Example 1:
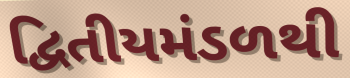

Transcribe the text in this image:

દ્વિતીયમંડળથી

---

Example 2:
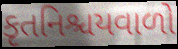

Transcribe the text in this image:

કૃતનિશ્ચયવાળો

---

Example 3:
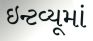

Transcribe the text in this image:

ઇન્ટવ્યૂમાં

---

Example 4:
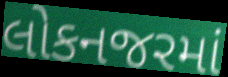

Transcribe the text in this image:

લોકનજરમાં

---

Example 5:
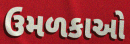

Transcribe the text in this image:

ઉમળકાઓ